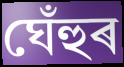
ঘেঁহুৰ